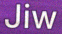
Jiw